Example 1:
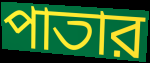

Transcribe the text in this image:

পাতার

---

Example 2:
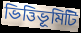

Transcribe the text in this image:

ভিত্তিভূমিটি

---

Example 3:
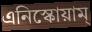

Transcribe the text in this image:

এনিস্কোয়াম্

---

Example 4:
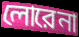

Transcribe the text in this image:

লোরেনা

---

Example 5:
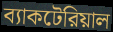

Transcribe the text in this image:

ব্যাকটেরিয়াল